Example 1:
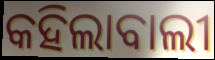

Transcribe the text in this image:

କହିଲାବାଲୀ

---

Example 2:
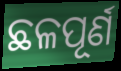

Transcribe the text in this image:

ଛଳପୂର୍ଣ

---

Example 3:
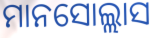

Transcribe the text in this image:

ମାନସୋଲ୍ଲାସ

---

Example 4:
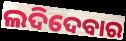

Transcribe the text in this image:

ଲଦିଦେବାର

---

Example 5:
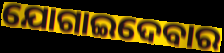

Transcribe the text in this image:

ଯୋଗାଇଦେବାର